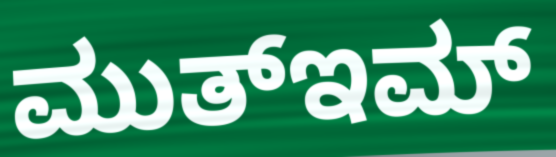
ಮುತ್ಇಮ್